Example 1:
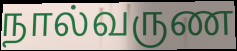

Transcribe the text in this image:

நால்வருண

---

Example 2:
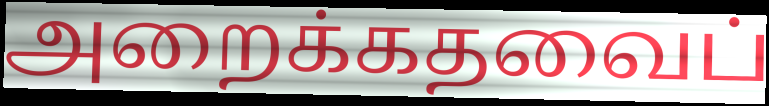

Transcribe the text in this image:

அறைக்கதவைப்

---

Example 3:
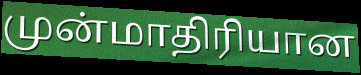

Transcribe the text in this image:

முன்மாதிரியான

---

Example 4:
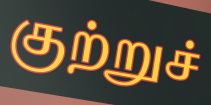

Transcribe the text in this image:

குற்றுச்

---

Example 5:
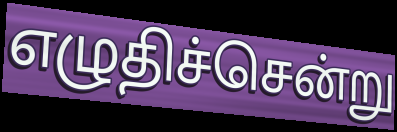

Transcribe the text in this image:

எழுதிச்சென்று